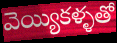
వెయ్యికళ్ళతో